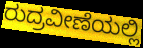
ರುದ್ರವೀಣೆಯಲ್ಲಿ